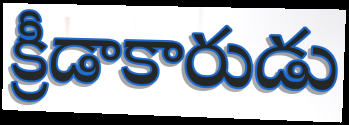
క్రీడాకారుడు